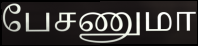
பேசணுமா